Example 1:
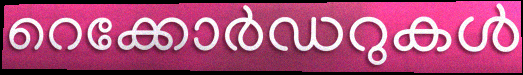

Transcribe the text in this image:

റെക്കോർഡറുകൾ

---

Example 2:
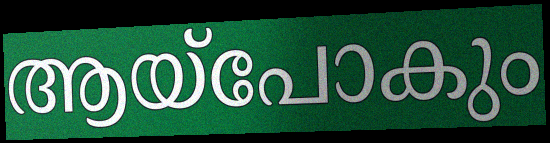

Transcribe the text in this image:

ആയ്പോകും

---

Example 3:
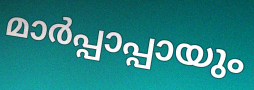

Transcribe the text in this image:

മാർപ്പാപ്പായും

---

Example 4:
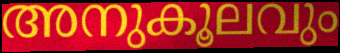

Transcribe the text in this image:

അനുകൂലവും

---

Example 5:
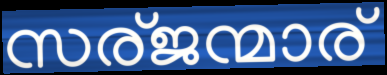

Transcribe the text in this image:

സര്ജന്മാര്